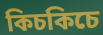
কিচকিচে